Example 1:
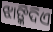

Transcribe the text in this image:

ଝାଙ୍କିଦିଏ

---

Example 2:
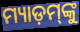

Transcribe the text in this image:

ମ୍ୟାଡ଼ମ୍‌ଙ୍କୁ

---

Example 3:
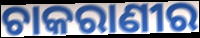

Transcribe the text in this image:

ଚାକରାଣୀର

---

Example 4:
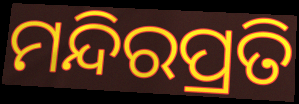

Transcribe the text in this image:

ମନ୍ଦିରପ୍ରତି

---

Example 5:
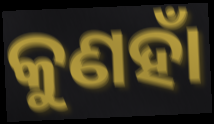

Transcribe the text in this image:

କୁଣହାଁ